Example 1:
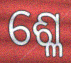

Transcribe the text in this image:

ଶ୍ଳେ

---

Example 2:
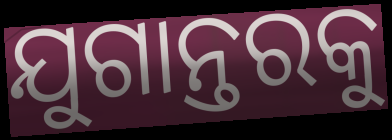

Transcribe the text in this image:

ଯୁଗାନ୍ତରକୁ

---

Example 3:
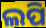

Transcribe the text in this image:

ଲପି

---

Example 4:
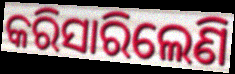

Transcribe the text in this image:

କରିସାରିଲେଣି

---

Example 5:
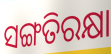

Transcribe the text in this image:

ସଙ୍ଗତିରକ୍ଷା